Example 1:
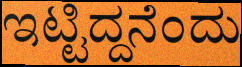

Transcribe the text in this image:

ಇಟ್ಟಿದ್ದನೆಂದು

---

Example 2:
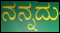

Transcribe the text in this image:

ನನ್ನದು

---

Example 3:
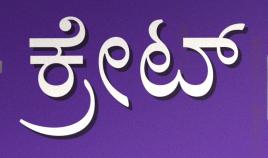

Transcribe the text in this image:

ಕ್ರೇಟ್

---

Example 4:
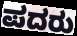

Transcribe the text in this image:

ಪದರು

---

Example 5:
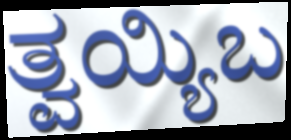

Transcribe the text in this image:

ತ್ವಯ್ಯಿಬ